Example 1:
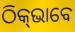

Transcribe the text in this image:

ଠିକ୍‌ଭାବେ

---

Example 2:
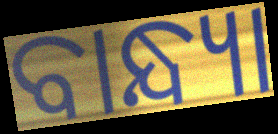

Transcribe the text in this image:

ବାନ୍ଧ୍ୟା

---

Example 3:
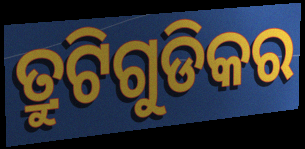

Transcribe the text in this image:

ତ୍ରୁଟିଗୁଡିକର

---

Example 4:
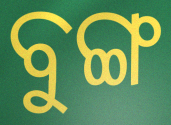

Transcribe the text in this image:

ବୁଙ୍ଗ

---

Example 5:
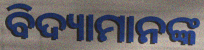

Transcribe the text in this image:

ବିଦ୍ୟାମାନଙ୍କ